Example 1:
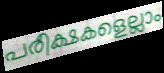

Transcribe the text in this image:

പരീക്ഷകളെല്ലാം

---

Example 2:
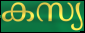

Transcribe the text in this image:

കസ്യ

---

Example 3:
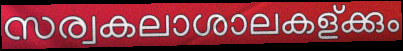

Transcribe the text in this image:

സര്വകലാശാലകള്ക്കും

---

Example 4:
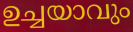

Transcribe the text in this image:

ഉച്ചയാവും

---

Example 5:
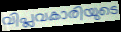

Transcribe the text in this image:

വിപ്ലവകാരിയുടെ